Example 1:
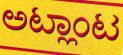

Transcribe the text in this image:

ಅಟ್ಲಾಂಟ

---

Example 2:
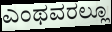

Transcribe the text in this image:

ಎಂಥವರಲ್ಲೂ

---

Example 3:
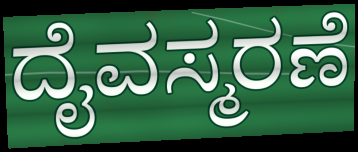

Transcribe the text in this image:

ದೈವಸ್ಮರಣೆ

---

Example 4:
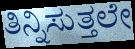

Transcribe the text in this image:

ತಿನ್ನಿಸುತ್ತಲೇ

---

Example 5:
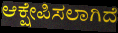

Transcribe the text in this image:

ಆಕ್ಷೇಪಿಸಲಾಗಿದೆ